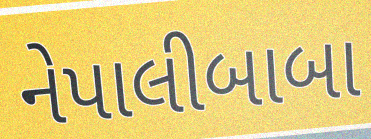
નેપાલીબાબા